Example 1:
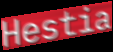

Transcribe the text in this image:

Hestia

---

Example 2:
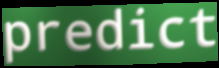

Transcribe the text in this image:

predict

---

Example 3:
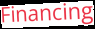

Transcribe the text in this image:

Financing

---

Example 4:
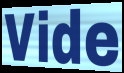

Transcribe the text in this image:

Vide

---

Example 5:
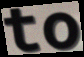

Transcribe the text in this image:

to